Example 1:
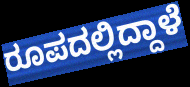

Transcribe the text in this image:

ರೂಪದಲ್ಲಿದ್ದಾಳೆ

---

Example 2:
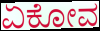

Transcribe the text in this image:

ಏಕೋವ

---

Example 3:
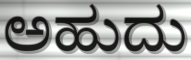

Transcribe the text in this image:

ಅಹುದು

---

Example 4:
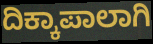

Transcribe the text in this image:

ದಿಕ್ಕಾಪಾಲಾಗಿ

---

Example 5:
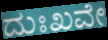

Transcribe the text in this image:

ದುಃಖವೇ